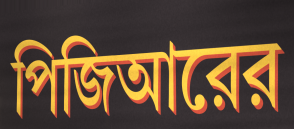
পিজিআরের